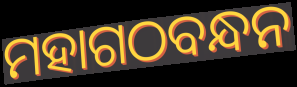
ମହାଗଠବନ୍ଧନ